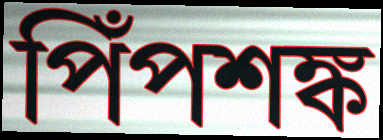
পিঁপশঙ্ক